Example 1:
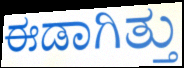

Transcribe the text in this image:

ಈಡಾಗಿತ್ತು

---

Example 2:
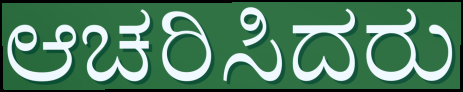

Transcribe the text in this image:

ಆಚರಿಸಿದರು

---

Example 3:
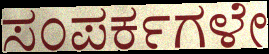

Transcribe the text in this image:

ಸಂಪರ್ಕಗಳೇ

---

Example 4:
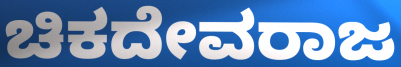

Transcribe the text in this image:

ಚಿಕದೇವರಾಜ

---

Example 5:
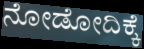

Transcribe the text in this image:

ನೋಡೋದಿಕ್ಕೆ